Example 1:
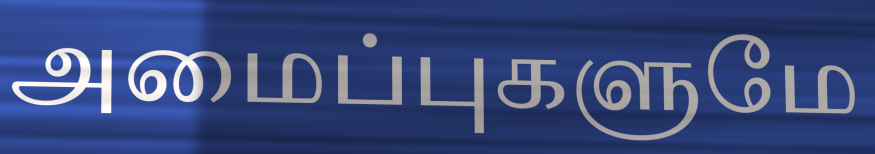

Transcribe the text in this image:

அமைப்புகளுமே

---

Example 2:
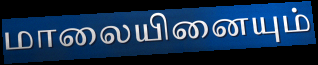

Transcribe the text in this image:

மாலையினையும்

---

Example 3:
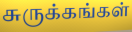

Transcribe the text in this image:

சுருக்கங்கள்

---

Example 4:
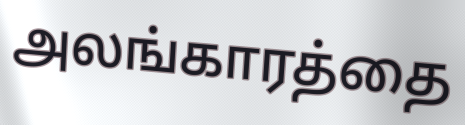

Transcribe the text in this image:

அலங்காரத்தை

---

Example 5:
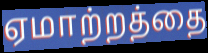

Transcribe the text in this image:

ஏமாற்றத்தை